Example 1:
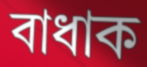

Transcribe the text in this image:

বাধাক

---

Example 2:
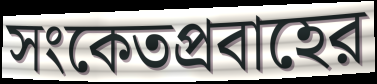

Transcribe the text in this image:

সংকেতপ্রবাহের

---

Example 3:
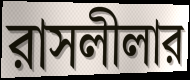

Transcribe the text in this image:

রাসলীলার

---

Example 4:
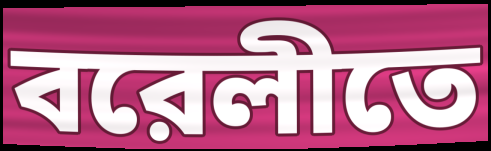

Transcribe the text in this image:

বরেলীতে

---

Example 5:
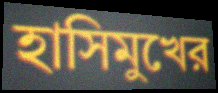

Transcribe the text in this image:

হাসিমুখের